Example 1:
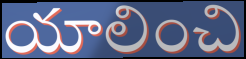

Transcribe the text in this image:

యాలించి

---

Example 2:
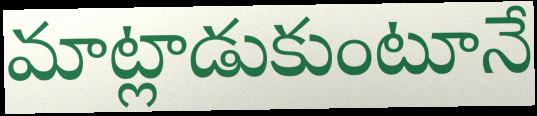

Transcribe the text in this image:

మాట్లాడుకుంటూనే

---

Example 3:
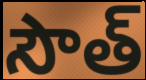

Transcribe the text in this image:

సౌత్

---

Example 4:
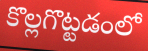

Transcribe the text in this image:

కొల్లగొట్టడంలో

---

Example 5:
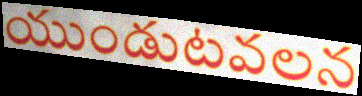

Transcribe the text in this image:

యుండుటవలన